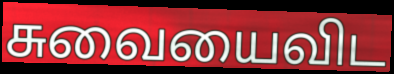
சுவையைவிட